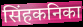
सिंहकनिका